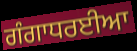
ਗੰਗਾਧਰਈਆ